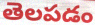
తెలపడం